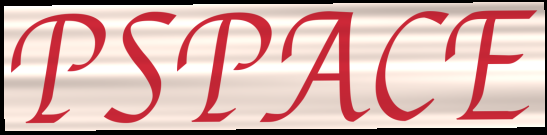
PSPACE